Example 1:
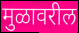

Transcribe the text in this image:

मुळावरील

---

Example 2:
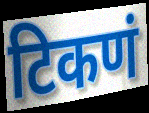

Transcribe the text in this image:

टिकणं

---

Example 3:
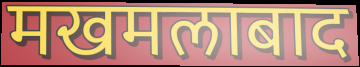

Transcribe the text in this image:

मखमलाबाद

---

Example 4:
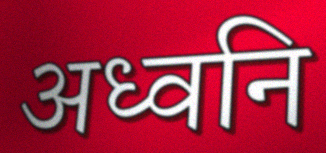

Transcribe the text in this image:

अध्वनि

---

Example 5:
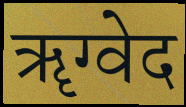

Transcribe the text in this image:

ॠग्वेद